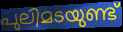
പുലിമടയുണ്ട്